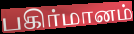
பகிர்மானம்